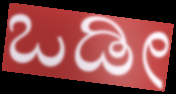
ಒಡೀ